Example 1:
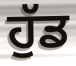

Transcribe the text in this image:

ਹੁੱਡ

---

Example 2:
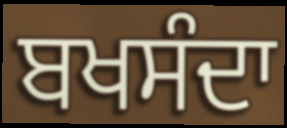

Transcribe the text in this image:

ਬਖਸੰਦਾ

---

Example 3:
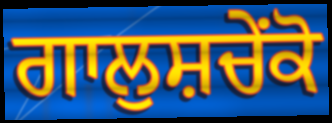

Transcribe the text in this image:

ਗਾਲੁਸ਼ਚੇਂਕੋ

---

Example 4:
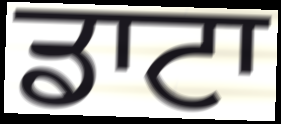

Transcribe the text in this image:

ਡਾਟਾ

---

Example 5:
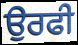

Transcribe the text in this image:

ਉਰਫੀ